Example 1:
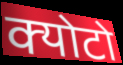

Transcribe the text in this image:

क्‍योटो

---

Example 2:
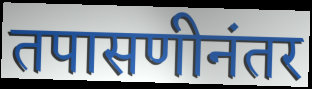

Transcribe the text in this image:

तपासणीनंतर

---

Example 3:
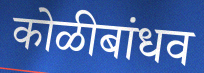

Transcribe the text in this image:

कोळीबांधव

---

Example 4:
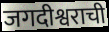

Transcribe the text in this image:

जगदीश्वराची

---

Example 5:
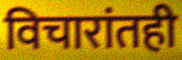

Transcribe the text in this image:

विचारांतही